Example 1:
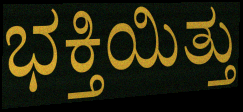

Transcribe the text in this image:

ಭಕ್ತಿಯಿತ್ತು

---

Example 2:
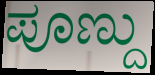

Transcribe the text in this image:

ಪೂಣ್ದು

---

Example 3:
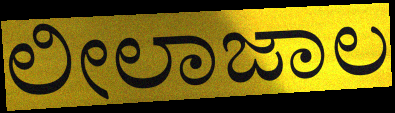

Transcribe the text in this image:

ಲೀಲಾಜಾಲ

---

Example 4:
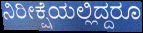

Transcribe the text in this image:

ನಿರೀಕ್ಷೆಯಲ್ಲಿದ್ದರೂ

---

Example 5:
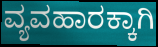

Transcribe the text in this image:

ವ್ಯವಹಾರಕ್ಕಾಗಿ